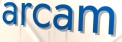
arcam